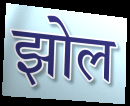
झोल